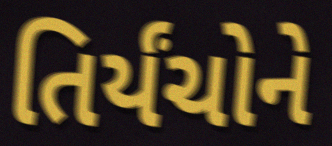
તિર્યંચોને